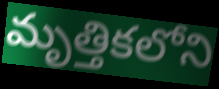
మృత్తికలోని